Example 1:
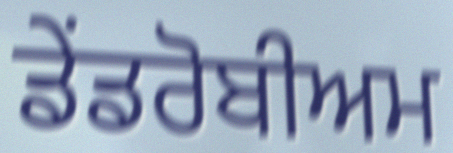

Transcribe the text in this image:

ਡੇਂਡਰੋਬੀਅਮ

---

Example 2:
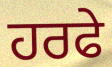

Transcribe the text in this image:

ਹਰਫੇ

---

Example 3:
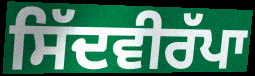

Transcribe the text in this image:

ਸਿੱਦਵੀਰੱਪਾ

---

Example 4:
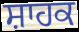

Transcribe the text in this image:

ਸ਼ਾਹਕ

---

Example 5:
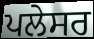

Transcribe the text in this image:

ਪਲੇਸਰ